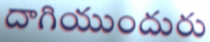
దాగియుందురు